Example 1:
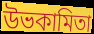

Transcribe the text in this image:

উভকামিতা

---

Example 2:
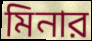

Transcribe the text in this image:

মিনার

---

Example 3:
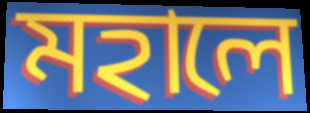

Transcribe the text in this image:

মহালে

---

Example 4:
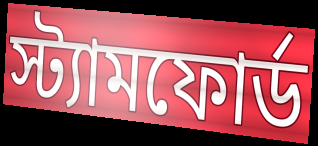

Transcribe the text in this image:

স্ট্যামফোর্ড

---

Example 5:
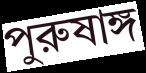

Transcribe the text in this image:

পুরুষাঙ্গ